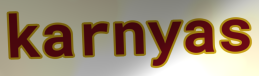
karnyas